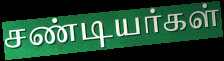
சண்டியர்கள்